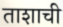
ताशाची